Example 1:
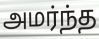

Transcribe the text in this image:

அமர்ந்த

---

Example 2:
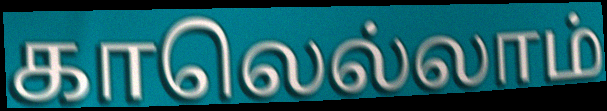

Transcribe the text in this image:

காலெல்லாம்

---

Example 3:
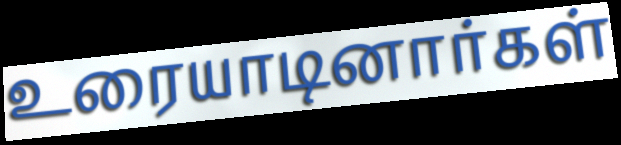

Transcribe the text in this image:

உரையாடினார்கள்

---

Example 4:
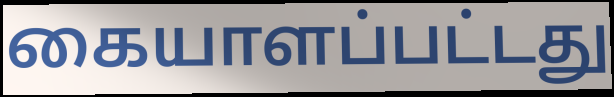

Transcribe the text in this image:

கையாளப்பட்டது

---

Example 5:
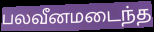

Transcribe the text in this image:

பலவீனமடைந்த